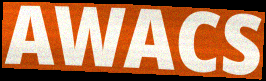
AWACS